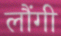
लौंगी